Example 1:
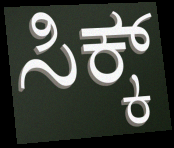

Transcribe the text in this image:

ಸಿಕ್ಕ್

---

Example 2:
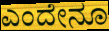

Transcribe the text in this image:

ಎಂದೇನೂ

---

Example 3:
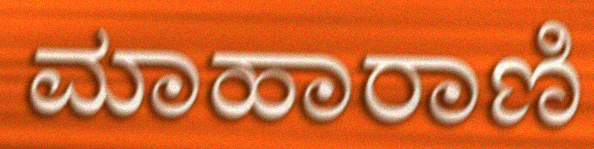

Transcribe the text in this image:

ಮಾಹಾರಾಣಿ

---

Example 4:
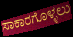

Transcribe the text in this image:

ಸಾಕಾರಗೊಳ್ಳಲು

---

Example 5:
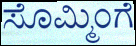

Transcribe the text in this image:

ಸೊಮ್ಮಿಂಗೆ